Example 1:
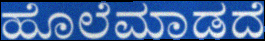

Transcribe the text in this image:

ಹೊಲೆಮಾಡದೆ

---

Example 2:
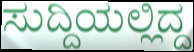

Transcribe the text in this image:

ಸುದ್ದಿಯಲ್ಲಿದ್ದ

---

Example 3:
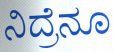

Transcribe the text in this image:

ನಿದ್ರೆನೂ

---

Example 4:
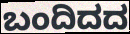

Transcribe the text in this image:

ಬಂದಿದದ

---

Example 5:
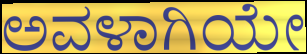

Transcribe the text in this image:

ಅವಳಾಗಿಯೇ